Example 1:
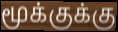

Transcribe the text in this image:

மூக்குக்கு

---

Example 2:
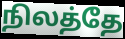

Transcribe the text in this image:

நிலத்தே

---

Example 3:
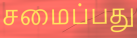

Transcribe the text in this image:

சமைப்பது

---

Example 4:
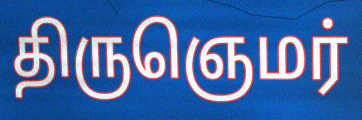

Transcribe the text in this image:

திருஞெமர்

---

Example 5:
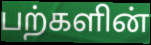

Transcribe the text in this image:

பற்களின்